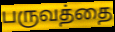
பருவத்தை